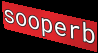
sooperb